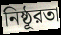
নিষ্ঠূরতা